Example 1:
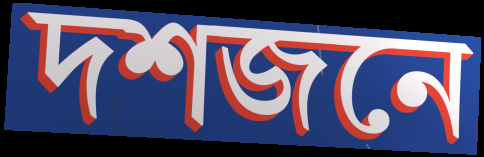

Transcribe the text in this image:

দশজনে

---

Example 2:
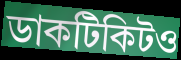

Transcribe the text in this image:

ডাকটিকিটও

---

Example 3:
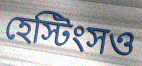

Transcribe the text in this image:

হেস্টিংসও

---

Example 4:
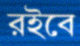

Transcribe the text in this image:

রইবে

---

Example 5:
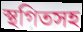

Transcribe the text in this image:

স্থগিতসহ